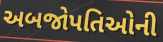
અબજોપતિઓની